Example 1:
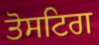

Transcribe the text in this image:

ਤੋਸਟਿਗ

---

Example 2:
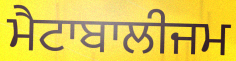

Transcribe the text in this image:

ਮੈਟਾਬਾਲੀਜਮ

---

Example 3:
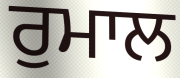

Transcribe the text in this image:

ਰੁਮਾਲ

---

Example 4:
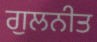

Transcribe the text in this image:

ਗੁਲਨੀਤ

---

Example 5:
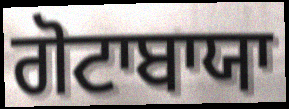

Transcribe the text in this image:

ਗੋਟਾਬਾਯਾ